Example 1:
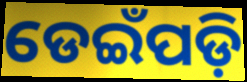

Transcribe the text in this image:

ଡେଇଁପଡ଼ି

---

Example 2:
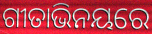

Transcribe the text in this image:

ଗୀତାଭିନୟରେ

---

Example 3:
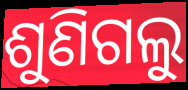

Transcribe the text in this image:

ଶୁଣିଗଲୁ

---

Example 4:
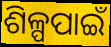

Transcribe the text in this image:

ଶିଳ୍ପପାଇଁ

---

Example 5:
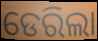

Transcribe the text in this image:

ଡେରିଲା